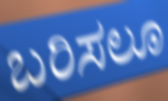
ಬರಿಸಲೂ